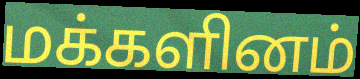
மக்களினம்